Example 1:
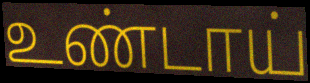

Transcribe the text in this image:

உண்டாய்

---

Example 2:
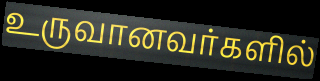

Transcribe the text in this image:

உருவானவர்களில்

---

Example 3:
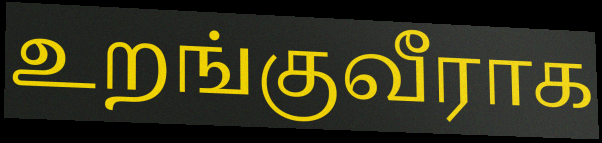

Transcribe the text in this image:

உறங்குவீராக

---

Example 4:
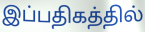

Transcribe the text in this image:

இப்பதிகத்தில்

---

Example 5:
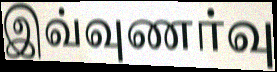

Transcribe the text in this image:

இவ்வுணர்வு